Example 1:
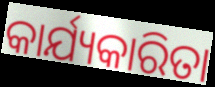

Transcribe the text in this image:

କାର୍ଯ୍ୟକାରିତା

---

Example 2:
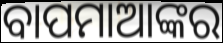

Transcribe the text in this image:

ବାପମାଆଙ୍କର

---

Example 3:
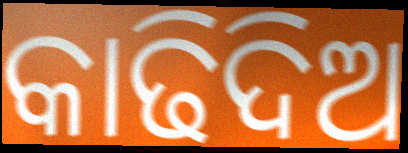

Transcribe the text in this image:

କାଢିଦିଅ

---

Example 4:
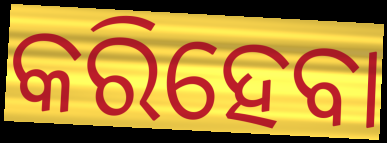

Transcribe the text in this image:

କରିହେବା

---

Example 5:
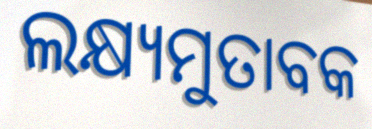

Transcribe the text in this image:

ଲକ୍ଷ୍ୟମୁତାବକ